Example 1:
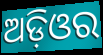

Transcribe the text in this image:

ଅଡ଼ିଓର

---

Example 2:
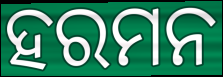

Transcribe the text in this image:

ହରମନ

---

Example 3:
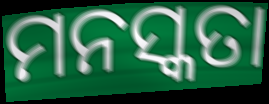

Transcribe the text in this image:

ମନସ୍କତା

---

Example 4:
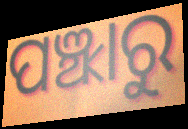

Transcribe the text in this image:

ପଞ୍ଝାରୁ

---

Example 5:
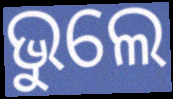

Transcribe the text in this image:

ଭୁଲେ